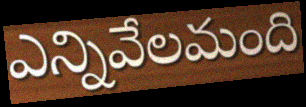
ఎన్నివేలమంది